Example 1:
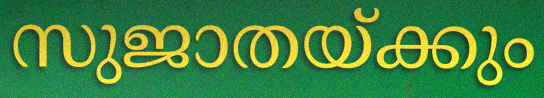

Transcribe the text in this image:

സുജാതയ്ക്കും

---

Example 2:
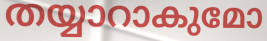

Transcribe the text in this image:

തയ്യാറാകുമോ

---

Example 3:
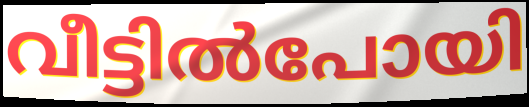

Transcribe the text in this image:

വീട്ടിൽപോയി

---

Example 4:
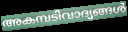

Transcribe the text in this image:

അകമ്പടിവാദ്യങ്ങൾ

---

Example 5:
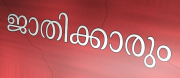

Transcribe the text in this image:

ജാതിക്കാരും